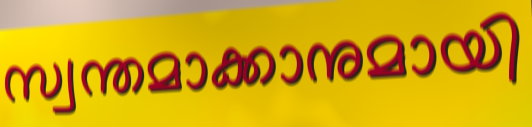
സ്വന്തമാക്കാനുമായി